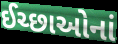
ઈચ્છાઓનાં